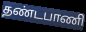
தண்டபாணி